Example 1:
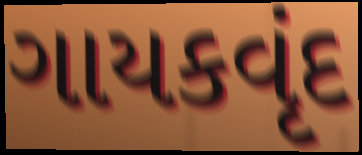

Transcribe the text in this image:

ગાયકવૃંદ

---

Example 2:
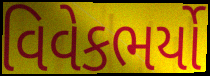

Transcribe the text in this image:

વિવેકભર્યો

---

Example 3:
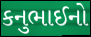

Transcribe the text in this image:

કનુભાઈનો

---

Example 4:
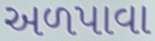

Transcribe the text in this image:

અળપાવા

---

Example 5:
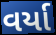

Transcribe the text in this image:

વર્યા